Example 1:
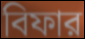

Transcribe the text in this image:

বিফার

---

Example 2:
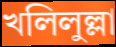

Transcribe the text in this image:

খলিলুল্লা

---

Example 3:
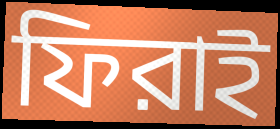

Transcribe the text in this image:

ফিরাই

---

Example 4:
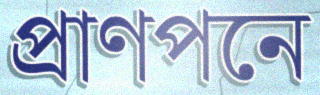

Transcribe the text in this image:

প্রাণপনে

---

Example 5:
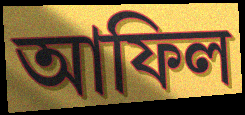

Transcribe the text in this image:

আফিল